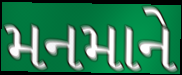
મનમાને